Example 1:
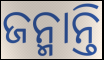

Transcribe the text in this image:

ଜନ୍ମାନ୍ତି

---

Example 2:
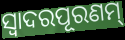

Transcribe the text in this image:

ସ୍ଵାଦରପୂରଣମ୍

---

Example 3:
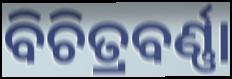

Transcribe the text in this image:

ବିଚିତ୍ରବର୍ଣ୍ଣା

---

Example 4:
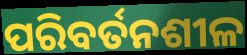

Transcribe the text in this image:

ପରିବର୍ତନଶୀଳ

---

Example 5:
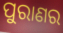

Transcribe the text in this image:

ପୁରାଣର